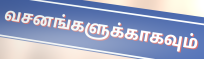
வசனங்களுக்காகவும்